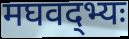
मघवद्भ्यः